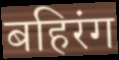
बहिरंग